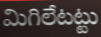
మిగిలేటట్టు